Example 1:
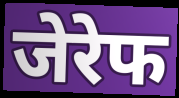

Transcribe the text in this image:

जेरेफ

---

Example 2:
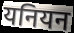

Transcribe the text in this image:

यनियन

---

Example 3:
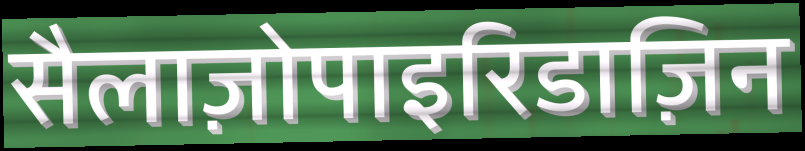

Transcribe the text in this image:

सैलाज़ोपाइरिडाज़िन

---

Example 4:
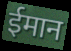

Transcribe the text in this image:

ईमान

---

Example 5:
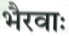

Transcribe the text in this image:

भैरवाः